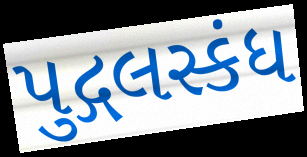
પુદ્ગલસ્કંધ